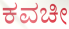
ಕವಚೀ